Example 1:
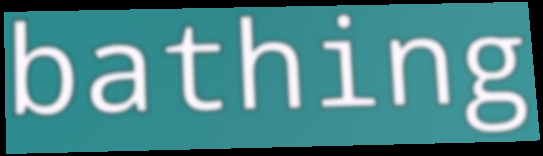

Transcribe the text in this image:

bathing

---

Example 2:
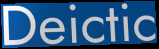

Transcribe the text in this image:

Deictic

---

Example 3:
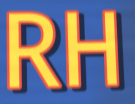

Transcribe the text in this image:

RH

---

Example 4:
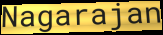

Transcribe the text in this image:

Nagarajan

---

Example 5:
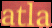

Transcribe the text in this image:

atla